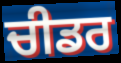
ਚੀਡਰ